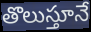
తొలుస్తూనే